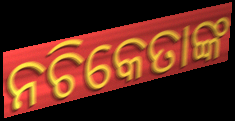
ନଚିକେତାଙ୍କ